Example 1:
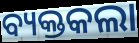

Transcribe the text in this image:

ବ୍ୟକ୍ତକଲା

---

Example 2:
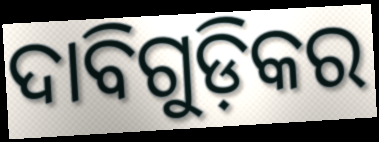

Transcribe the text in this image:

ଦାବିଗୁଡ଼ିକର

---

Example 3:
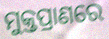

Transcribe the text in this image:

ମୁକ୍ତପ୍ରାଣରେ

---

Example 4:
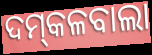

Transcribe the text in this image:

ଦମ୍‍କଳବାଲା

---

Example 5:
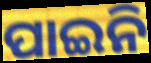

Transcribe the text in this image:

ପାଇନି